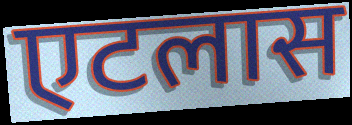
एटलास